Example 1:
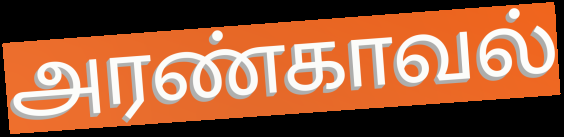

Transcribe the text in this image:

அரண்காவல்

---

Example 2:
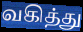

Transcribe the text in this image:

வகித்து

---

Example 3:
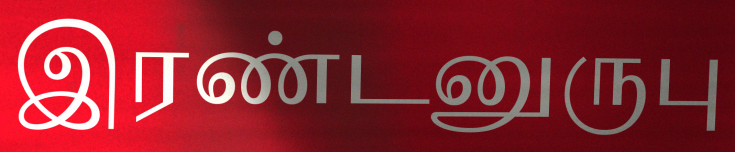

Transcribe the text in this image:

இரண்டனுருபு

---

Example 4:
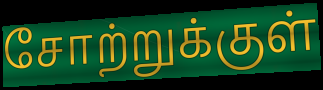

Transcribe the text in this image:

சோற்றுக்குள்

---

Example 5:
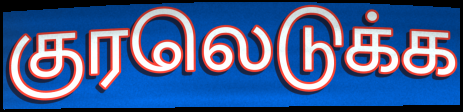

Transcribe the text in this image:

குரலெடுக்க